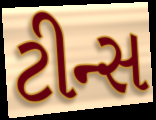
ટીન્સ